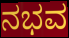
ನಭವ